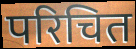
परिचित